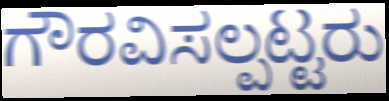
ಗೌರವಿಸಲ್ಪಟ್ಟರು